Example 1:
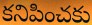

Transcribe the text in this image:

కనిపించకు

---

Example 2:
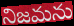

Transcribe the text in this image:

నిజమను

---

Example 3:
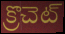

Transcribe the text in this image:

క్రొచెట్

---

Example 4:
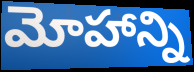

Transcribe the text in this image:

మోహాన్ని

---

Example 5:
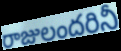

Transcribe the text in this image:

రాజులందరినీ